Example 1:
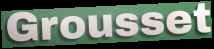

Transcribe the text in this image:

Grousset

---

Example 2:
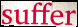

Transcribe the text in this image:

suffer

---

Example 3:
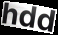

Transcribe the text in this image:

hdd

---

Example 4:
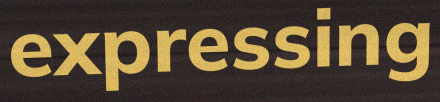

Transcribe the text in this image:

expressing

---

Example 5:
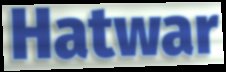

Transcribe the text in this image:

Hatwar